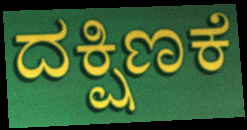
ದಕ್ಷಿಣಕೆ